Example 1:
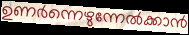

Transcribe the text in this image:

ഉണർന്നെഴുന്നേൽക്കാൻ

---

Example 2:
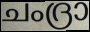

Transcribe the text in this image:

ചംദ്രാ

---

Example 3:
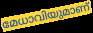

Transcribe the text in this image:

മേധാവിയുമാണ്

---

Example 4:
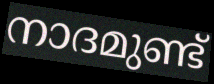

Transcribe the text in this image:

നാദമുണ്ട്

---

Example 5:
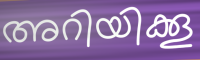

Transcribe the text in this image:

അറിയിക്കൂ